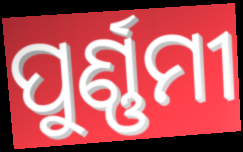
ପୁର୍ଣ୍ଣମୀ